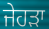
ਜੇਹੜਾ